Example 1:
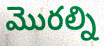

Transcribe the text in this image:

మొరల్ని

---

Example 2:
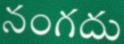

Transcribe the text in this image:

నంగదు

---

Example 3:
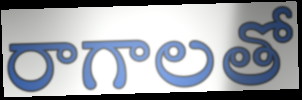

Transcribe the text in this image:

రాగాలతో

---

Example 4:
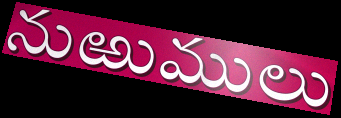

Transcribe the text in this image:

నుఱుములు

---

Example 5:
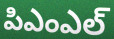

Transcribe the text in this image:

పిఎంఎల్